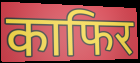
काफिर